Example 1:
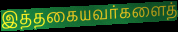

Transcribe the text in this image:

இத்தகையவர்களைத்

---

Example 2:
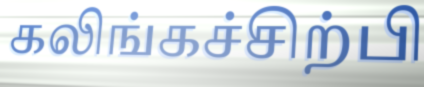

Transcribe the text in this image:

கலிங்கச்சிற்பி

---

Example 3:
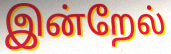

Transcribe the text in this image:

இன்றேல்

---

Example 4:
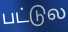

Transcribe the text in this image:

பட்டுல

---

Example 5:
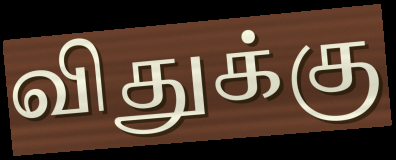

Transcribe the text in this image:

விதுக்கு